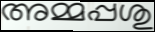
അമ്മപ്പശു